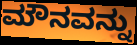
ಮೌನವನ್ನು